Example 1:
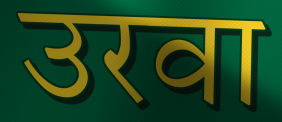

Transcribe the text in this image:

उरवा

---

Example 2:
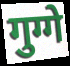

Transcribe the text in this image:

गुग्गे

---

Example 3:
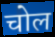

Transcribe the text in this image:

चोल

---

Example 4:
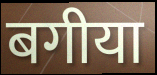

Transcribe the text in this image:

बगीया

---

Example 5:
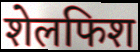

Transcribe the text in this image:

शेलफिश